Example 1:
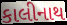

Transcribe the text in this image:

કાલીનાથ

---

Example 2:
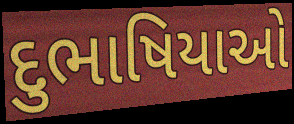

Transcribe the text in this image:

દુભાષિયાઓ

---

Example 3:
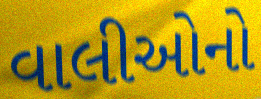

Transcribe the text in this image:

વાલીઓનો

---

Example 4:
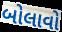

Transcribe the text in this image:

બોલાવો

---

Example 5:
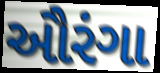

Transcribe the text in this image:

ઔરંગા